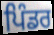
ਪਿੰਡਰ